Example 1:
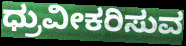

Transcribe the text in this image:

ಧ್ರುವೀಕರಿಸುವ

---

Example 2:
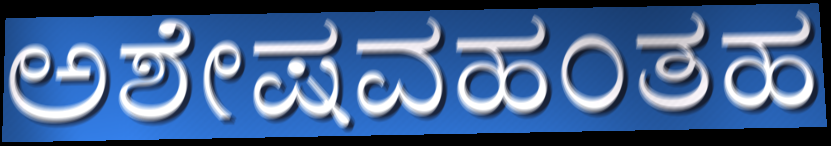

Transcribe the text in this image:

ಅಶೇಷವಹಂತಹ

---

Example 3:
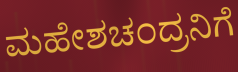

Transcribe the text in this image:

ಮಹೇಶಚಂದ್ರನಿಗೆ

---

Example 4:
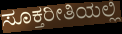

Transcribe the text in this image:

ಸೂಕ್ತರೀತಿಯಲ್ಲಿ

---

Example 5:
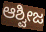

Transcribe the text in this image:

ಆಶ್ವೀಜ